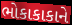
ભોકાકાકાને